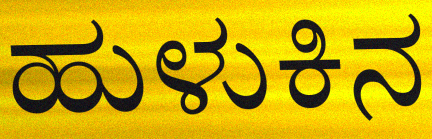
ಹುಳುಕಿನ